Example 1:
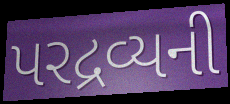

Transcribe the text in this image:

પરદ્રવ્યની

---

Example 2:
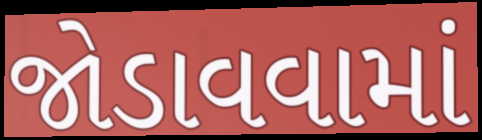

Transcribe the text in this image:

જોડાવવામાં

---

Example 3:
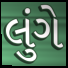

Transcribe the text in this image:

લુંગે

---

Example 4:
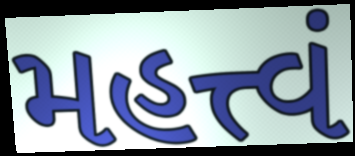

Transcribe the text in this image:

મહત્ત્વં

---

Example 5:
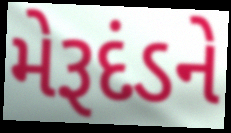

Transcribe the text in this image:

મેરૂદંડને